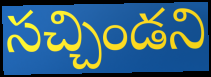
సచ్చిండని